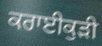
ਕਰਾਈਕੁੜੀ